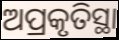
ଅପ୍ରକୃତିସ୍ଥା